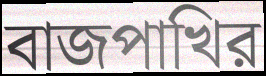
বাজপাখির